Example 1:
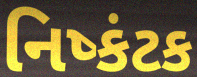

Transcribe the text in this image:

નિષ્કંટક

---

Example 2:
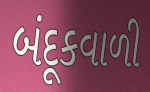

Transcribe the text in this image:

બંદૂકવાળી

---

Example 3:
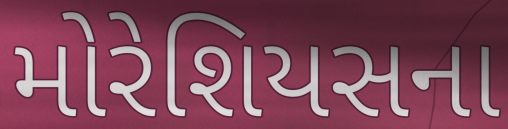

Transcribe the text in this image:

મોરેશિયસના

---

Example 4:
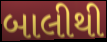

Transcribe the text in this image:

બાલીથી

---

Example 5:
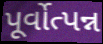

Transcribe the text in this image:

પૂર્વોત્પન્ન